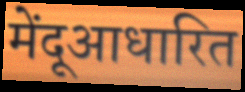
मेंदूआधारित